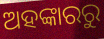
ଅହଙ୍କାରରୁ